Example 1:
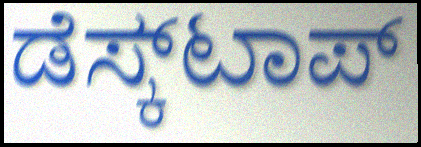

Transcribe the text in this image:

ಡೆಸ್ಕ್‌ಟಾಪ್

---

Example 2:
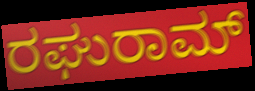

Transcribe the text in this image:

ರಘುರಾಮ್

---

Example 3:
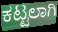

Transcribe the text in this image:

ಕಟ್ಟಲಾಗಿ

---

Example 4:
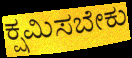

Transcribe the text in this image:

ಕ್ಷಮಿಸಬೇಕು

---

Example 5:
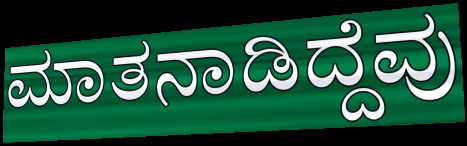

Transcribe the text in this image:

ಮಾತನಾಡಿದ್ದೆವು